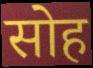
सोह